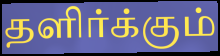
தளிர்க்கும்